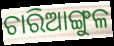
ଚାରିଆଙ୍ଗୁଳ